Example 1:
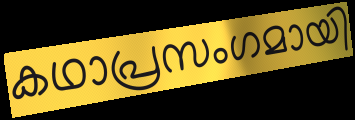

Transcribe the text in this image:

കഥാപ്രസംഗമായി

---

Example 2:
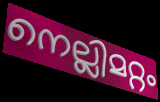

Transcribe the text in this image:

നെല്ലിമറ്റം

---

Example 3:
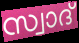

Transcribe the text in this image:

സ്വാദ്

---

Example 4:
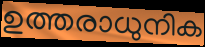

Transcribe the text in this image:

ഉത്തരാധുനിക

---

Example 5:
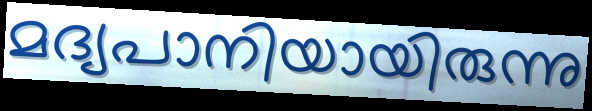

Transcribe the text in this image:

മദ്യപാനിയായിരുന്നു